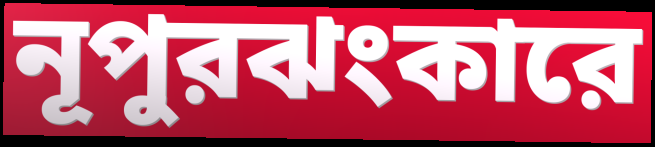
নূপুরঝংকারে